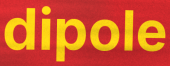
dipole